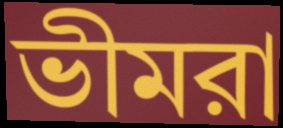
ভীমরা